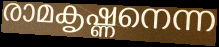
രാമകൃഷ്ണനെന്ന